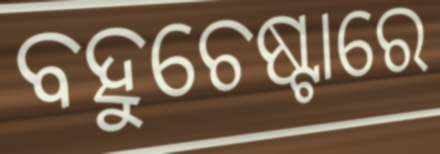
ବହୁଚେଷ୍ଟାରେ